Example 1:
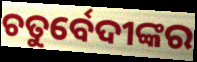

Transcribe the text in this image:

ଚତୁର୍ବେଦୀଙ୍କର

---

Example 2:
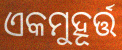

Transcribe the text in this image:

ଏକମୁହୂର୍ତ୍ତ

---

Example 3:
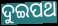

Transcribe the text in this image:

ଦୁଇପଥ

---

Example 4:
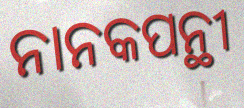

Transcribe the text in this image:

ନାନକପନ୍ଥୀ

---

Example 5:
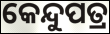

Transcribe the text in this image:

କେନ୍ଦୁପତ୍ର